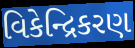
વિકેન્દ્રિકરણ